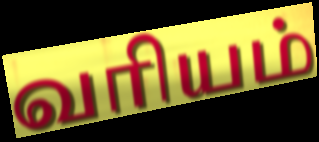
வரியம்